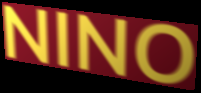
NINO